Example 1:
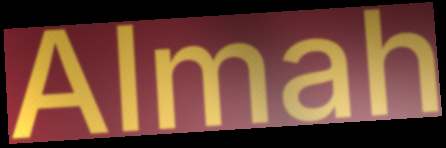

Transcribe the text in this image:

Almah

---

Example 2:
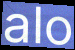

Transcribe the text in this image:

alo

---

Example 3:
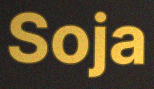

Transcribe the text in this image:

Soja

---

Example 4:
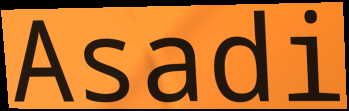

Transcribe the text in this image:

Asadi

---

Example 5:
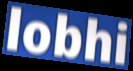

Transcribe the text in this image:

lobhi